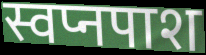
स्वप्नपाश